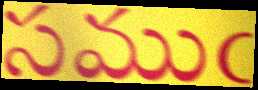
సముఁ